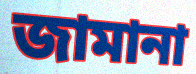
জামানা